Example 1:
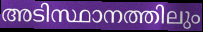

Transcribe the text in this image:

അടിസ്ഥാനത്തിലും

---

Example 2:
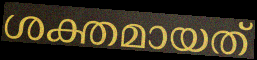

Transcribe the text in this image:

ശക്തമായത്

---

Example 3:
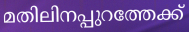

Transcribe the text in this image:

മതിലിനപ്പുറത്തേക്ക്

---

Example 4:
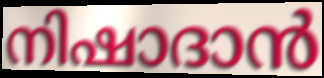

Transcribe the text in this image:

നിഷാദാൻ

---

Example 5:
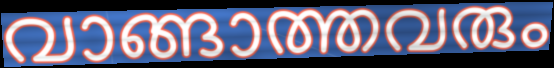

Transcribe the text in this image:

വാങ്ങാത്തവരും